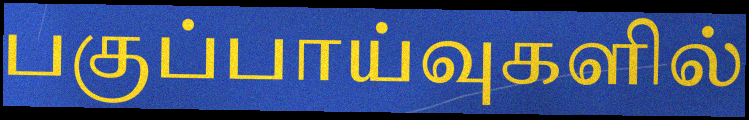
பகுப்பாய்வுகளில்